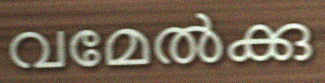
വമേൽക്കു